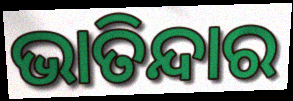
ଭାତିନ୍ଦାର